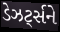
ડેઝર્ટ્સને